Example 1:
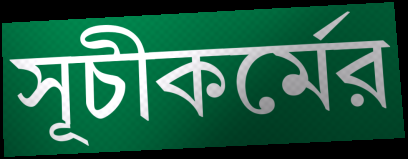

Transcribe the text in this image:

সূচীকর্মের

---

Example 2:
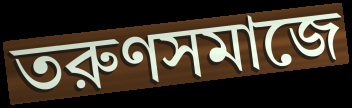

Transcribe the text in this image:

তরুণসমাজে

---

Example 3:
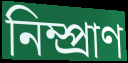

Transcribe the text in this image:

নিম্প্রাণ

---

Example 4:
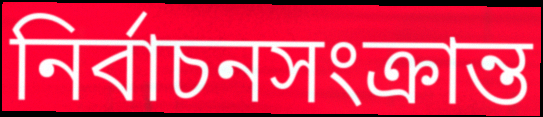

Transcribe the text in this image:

নির্বাচনসংক্রান্ত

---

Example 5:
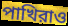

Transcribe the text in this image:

পাখিরাও